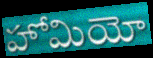
హోమియో